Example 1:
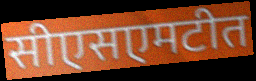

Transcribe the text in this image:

सीएसएमटीत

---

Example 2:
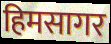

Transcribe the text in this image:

हिमसागर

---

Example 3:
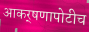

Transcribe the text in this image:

आकर्षणापोटीच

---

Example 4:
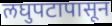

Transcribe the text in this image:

लघुपटापासून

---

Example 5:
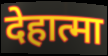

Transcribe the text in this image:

देहात्मा